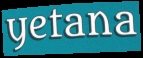
yetana